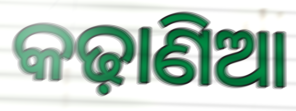
କଢ଼ାଣିଆ